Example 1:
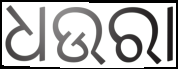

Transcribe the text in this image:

ଧଉରା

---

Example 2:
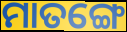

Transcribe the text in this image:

ମାତଙ୍ଗେ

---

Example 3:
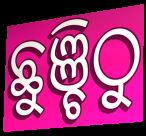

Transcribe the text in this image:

ଛୁଞ୍ଚିଠୁ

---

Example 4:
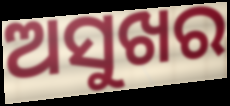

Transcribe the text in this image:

ଅସୁଖର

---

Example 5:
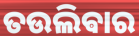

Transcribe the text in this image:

ତଉଲିଵାର